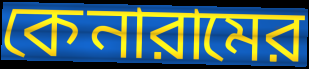
কেনারামের